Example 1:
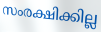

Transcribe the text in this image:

സംരക്ഷിക്കില്ല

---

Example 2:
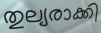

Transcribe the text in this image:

തുല്യരാക്കി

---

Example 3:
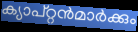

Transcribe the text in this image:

ക്യാപ്റ്റൻമാർക്കും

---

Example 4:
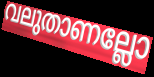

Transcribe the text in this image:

വലുതാണല്ലോ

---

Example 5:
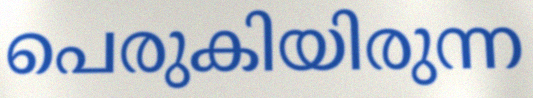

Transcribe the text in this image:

പെരുകിയിരുന്ന